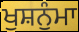
ਖੁਸ਼ਨੁੰਮਾ